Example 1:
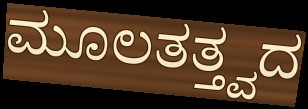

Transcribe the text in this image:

ಮೂಲತತ್ತ್ವದ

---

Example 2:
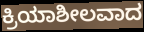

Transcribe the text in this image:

ಕ್ರಿಯಾಶೀಲವಾದ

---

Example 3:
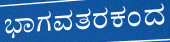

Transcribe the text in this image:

ಭಾಗವತರಕಂದ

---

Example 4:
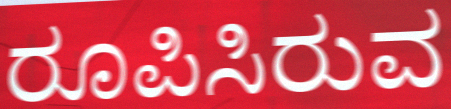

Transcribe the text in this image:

ರೂಪಿಸಿರುವ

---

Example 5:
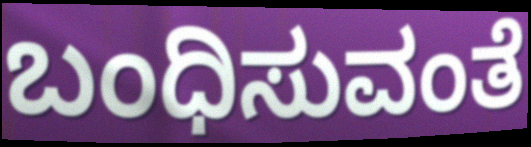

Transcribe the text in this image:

ಬಂಧಿಸುವಂತೆ